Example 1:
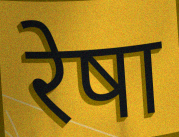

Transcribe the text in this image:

रेषा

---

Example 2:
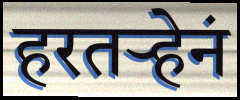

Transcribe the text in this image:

हरतर्‍हेनं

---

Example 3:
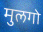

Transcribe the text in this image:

मुलगो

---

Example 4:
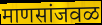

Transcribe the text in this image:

माणसांजवळ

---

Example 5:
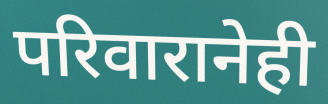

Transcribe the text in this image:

परिवारानेही